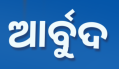
ଆର୍ବୁଦ